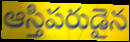
ఆస్తిపరుడైన